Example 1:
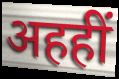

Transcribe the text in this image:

अहहीं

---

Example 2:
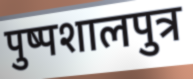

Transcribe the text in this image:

पुष्पशालपुत्र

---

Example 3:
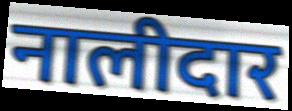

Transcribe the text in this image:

नालीदार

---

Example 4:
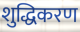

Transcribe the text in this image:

शुद्धिकरण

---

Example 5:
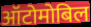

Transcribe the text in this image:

ऑटोमोबिल